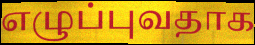
எழுப்புவதாக